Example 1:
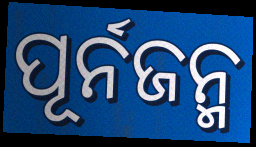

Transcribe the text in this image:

ପୂର୍ନଜନ୍ମ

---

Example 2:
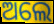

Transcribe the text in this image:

ଅଲେ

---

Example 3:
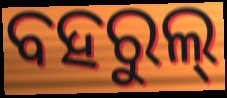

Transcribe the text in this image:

ବହରୁଲ୍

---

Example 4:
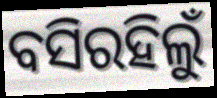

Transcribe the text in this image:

ବସିରହିଲୁଁ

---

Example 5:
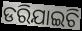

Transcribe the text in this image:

ଡରିଯାଇଚି